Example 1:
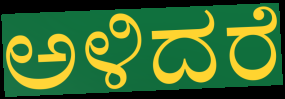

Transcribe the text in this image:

ಅಳಿದರೆ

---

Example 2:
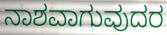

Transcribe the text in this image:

ನಾಶವಾಗುವುದರ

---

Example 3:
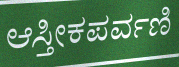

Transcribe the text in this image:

ಆಸ್ತೀಕಪರ್ವಣಿ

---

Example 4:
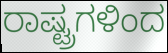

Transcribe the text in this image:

ರಾಷ್ಟ್ರಗಳಿಂದ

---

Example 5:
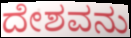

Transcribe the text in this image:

ದೇಶವನು